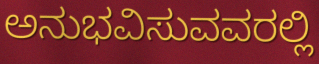
ಅನುಭವಿಸುವವರಲ್ಲಿ